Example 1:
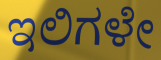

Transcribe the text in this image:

ಇಲಿಗಳೇ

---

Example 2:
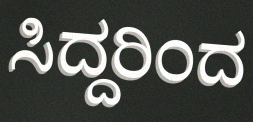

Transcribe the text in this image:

ಸಿದ್ದರಿಂದ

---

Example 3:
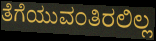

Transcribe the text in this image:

ತೆಗೆಯುವಂತಿರಲಿಲ್ಲ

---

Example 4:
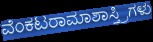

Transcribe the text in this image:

ವೆಂಕಟರಾಮಾಶಾಸ್ತ್ರಿಗಳು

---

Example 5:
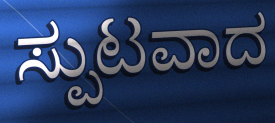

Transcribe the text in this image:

ಸ್ಪುಟವಾದ